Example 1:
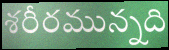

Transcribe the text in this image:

శరీరమున్నది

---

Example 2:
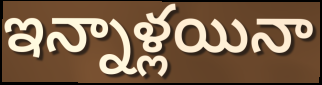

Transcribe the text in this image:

ఇన్నాళ్లయినా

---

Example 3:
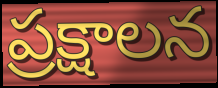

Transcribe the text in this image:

ప్రక్షాలన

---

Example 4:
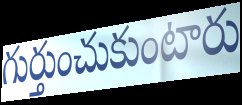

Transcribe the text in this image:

గుర్తుంచుకుంటారు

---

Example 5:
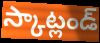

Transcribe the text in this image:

స్కాట్లండ్